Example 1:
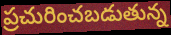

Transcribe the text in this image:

ప్రచురించబడుతున్న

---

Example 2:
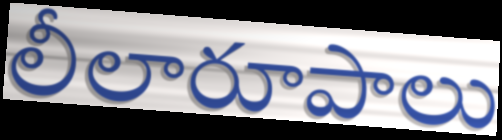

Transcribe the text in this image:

లీలారూపాలు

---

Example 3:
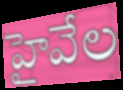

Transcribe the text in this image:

హైవేల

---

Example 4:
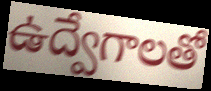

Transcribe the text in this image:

ఉద్వేగాలతో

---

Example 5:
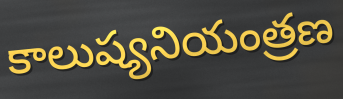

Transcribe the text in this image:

కాలుష్యనియంత్రణ